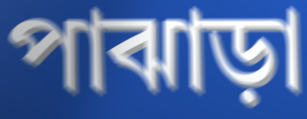
পাঝাড়া